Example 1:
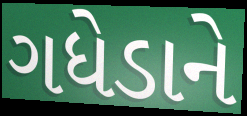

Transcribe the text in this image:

ગધેડાને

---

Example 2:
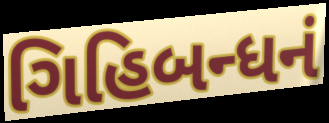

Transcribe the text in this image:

ગિહિબન્ધનં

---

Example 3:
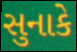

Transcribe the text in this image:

સુનાકે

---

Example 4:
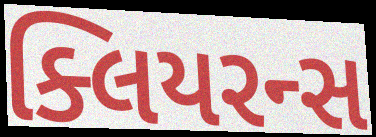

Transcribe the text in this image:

ક્લિયરન્સ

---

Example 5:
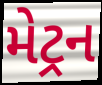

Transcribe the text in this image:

મેટ્રન